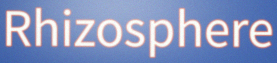
Rhizosphere